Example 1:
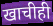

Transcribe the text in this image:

खाचीही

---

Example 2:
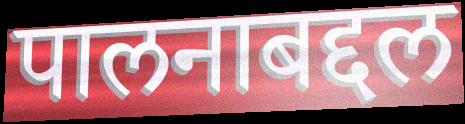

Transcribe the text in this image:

पालनाबद्दल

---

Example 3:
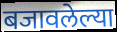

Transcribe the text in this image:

बजावलेल्या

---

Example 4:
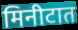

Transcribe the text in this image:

मिनीटात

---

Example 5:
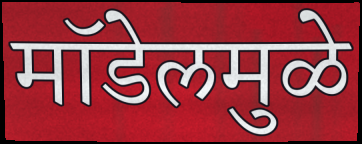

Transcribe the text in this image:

मॉडेलमुळे